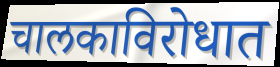
चालकाविरोधात